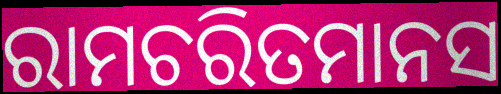
ରାମଚରିତମାନସ